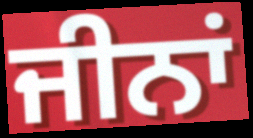
ਜੀਨਾਂ